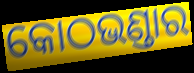
କୋଠଭଣ୍ଡାର